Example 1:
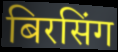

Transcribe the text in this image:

बिरसिंग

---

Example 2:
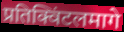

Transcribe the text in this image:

प्रतिक्विंटलमागे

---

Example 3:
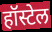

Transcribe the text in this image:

हॉस्टेल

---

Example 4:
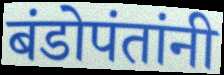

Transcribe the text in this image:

बंडोपंतांनी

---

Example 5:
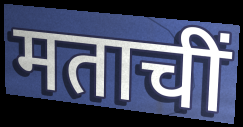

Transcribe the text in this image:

मताचीं